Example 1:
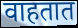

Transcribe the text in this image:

वाहतात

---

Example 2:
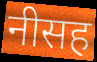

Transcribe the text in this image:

नीसह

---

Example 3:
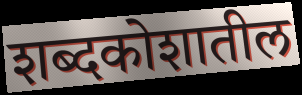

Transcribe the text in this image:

शब्दकोशातील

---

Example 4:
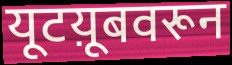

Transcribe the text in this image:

यूटय़ूबवरून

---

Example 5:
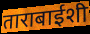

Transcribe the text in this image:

ताराबाईशी